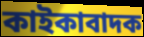
কাইকাবাদক